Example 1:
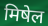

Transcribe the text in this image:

मिषेल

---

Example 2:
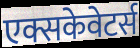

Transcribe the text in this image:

एक्सकेवेटर्स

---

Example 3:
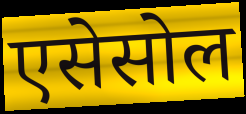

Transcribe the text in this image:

एसेसोल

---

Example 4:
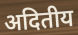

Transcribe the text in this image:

अदितीय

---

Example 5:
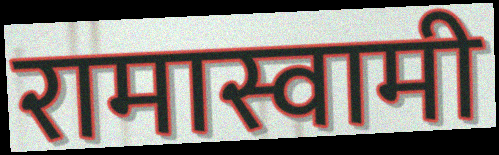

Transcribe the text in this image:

रामास्वामी